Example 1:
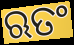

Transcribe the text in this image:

ଋତଂ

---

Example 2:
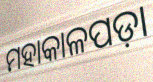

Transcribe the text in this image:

ମହାକାଳପଡ଼ା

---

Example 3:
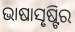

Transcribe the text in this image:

ଭାଷାସୃଷ୍ଟିର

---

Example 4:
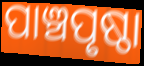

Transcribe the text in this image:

ପାଞ୍ଚପୃଷ୍ଠା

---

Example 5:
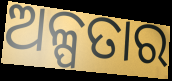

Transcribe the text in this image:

ଅଳ୍ପତାର